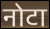
नोटा